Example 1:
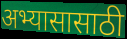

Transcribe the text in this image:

अभ्यासासाठी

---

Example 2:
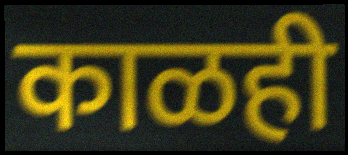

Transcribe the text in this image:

काळही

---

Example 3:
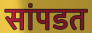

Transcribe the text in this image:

सांपडत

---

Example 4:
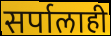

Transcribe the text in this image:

सर्पालाही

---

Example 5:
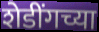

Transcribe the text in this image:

शेडींगच्या